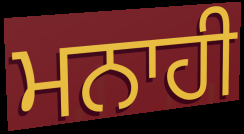
ਮਨਾਹੀ